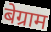
बेग्राम